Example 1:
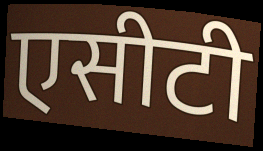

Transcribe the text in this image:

एसीटी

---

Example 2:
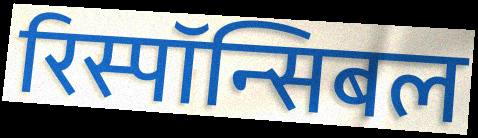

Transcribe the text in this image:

रिस्पॉन्सिबल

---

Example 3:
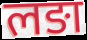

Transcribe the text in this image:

लङा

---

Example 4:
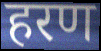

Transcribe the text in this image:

हरण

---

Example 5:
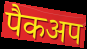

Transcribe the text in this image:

पैकअप